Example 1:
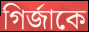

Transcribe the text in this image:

গির্জাকে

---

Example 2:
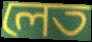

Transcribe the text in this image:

লেত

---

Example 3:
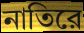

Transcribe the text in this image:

নাতিরে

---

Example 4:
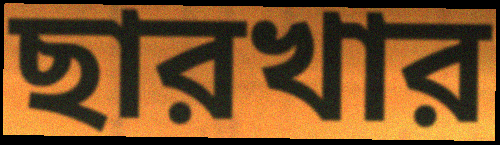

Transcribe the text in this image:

ছারখার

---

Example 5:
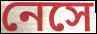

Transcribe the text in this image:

নেসে